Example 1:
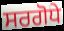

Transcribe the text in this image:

ਸਰਗੋਧੇ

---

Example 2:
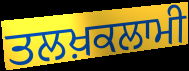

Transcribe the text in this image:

ਤਲਖ਼ਕਲਾਮੀ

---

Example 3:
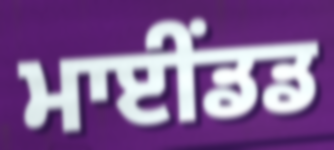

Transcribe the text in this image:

ਮਾਈਂਡਡ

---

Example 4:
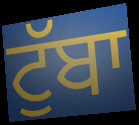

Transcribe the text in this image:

ਟੁੱਬਾ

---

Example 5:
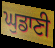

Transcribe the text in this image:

ਘੁਡਾਣੀ